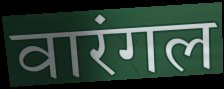
वारंगल